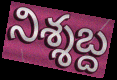
నిశ్శబ్ద